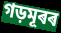
গড়মূৰৰ